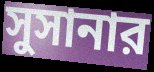
সুসানার